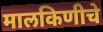
मालकिणीचे